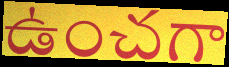
ఉంచగా